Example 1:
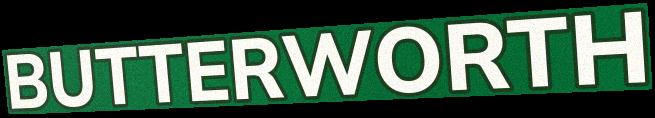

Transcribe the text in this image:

BUTTERWORTH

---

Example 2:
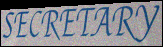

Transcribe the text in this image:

SECRETARY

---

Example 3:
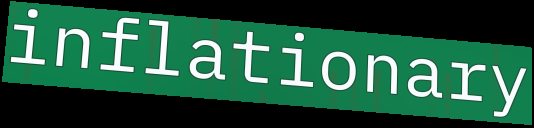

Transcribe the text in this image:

inflationary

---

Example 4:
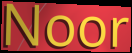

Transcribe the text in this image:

Noor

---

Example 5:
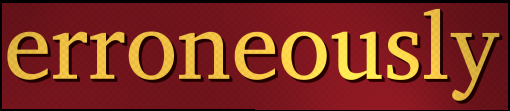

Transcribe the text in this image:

erroneously